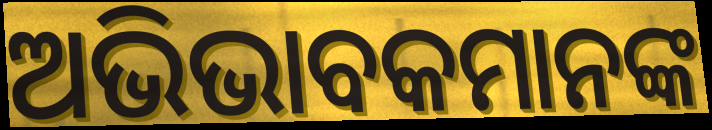
ଅଭିଭାବକମାନଙ୍କ